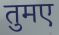
तुमए